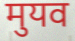
मुयव